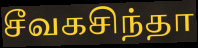
சீவகசிந்தா